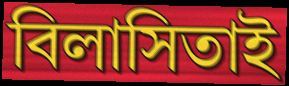
বিলাসিতাই